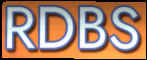
RDBS